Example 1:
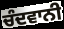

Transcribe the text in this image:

ਚੰਦਵਾਨੀ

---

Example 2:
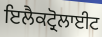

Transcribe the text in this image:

ਇਲੈਕਟ੍ਰੋਲਾਈਟ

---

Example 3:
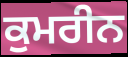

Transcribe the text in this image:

ਕੁਮਰੀਨ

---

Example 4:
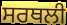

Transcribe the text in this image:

ਸਰਥਲੀ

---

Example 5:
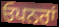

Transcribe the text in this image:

ਓਪਨਰਾਂ